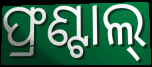
ଫ୍ରଣ୍ଟାଲ୍